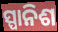
ସ୍ପାନିଶ